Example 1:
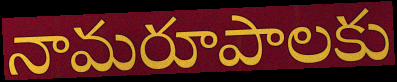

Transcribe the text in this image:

నామరూపాలకు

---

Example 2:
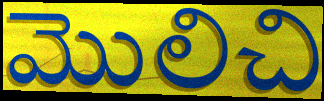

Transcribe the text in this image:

మొలిచి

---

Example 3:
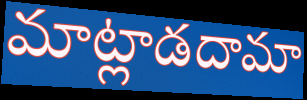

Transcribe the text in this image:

మాట్లాడదామా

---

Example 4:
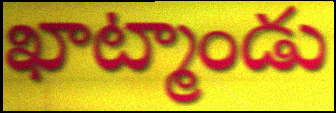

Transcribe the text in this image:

ఖాట్మాండు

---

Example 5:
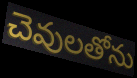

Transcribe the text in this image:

చెవులతోను